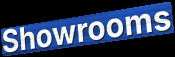
Showrooms